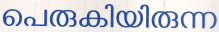
പെരുകിയിരുന്ന